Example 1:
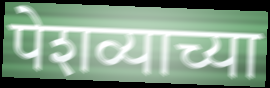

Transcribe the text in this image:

पेशव्याच्या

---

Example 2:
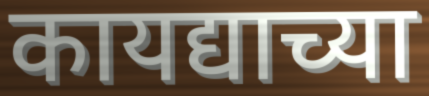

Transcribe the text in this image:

कायद्याच्या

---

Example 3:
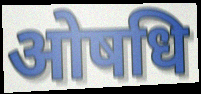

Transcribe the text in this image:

ओषधि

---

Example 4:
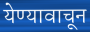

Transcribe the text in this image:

येण्यावाचून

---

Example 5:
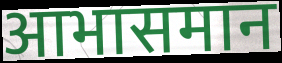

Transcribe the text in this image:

आभासमान